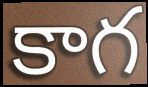
కాగ